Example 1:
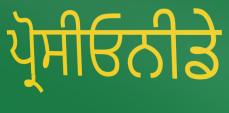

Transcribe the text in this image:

ਪ੍ਰੋਸੀਓਨੀਡੇ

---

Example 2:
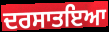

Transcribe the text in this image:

ਦਰਸਾਤਇਆ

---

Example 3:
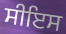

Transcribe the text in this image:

ਸੀਇਸ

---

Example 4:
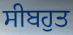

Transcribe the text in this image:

ਸੀਬਹੁਤ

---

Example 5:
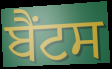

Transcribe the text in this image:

ਬੈਂਟਸ